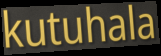
kutuhala